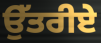
ਉੱਤਰੀਏ